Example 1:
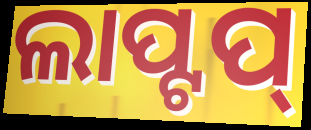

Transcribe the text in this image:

ଲାପ୍ଟପ୍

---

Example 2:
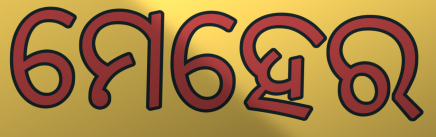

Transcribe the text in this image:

ମେହେର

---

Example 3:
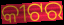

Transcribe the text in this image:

କୀଟର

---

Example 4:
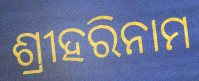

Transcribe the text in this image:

ଶ୍ରୀହରିନାମ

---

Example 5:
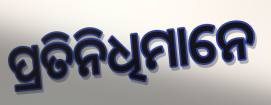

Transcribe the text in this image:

ପ୍ରତିନିଧିମାନେ